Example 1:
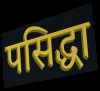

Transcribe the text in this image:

पसिद्धा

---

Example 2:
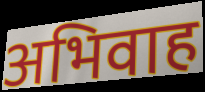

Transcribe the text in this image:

अभिवाह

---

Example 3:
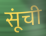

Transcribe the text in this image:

सूंची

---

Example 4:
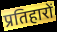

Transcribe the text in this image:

प्रतिहारों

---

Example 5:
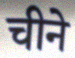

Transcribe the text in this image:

चीने